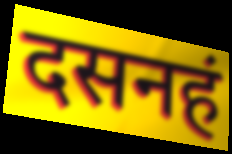
दसनहं